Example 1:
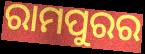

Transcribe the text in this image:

ରାମପୁରର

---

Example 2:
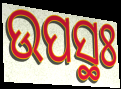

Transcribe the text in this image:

ଉପସ୍ଥଃ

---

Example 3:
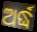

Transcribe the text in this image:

ଅର୍ଦ୍ଧ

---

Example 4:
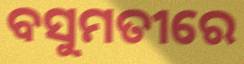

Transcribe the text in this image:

ବସୁମତୀରେ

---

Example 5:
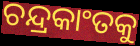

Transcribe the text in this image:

ଚନ୍ଦ୍ରକାଂତକୁ